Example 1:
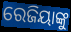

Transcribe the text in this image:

ରେଜିୟାଙ୍କୁ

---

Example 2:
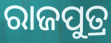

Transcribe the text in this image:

ରାଜପୁତ୍ର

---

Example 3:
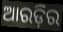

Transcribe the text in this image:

ଆରଡ଼ିର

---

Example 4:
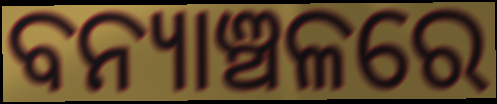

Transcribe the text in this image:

ବନ୍ୟାଞ୍ଚଳରେ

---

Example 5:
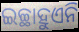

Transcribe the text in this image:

ଇଚ୍ଛାହୁଏନି